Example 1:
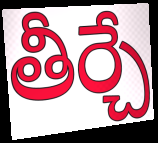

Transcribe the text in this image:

తీర్చే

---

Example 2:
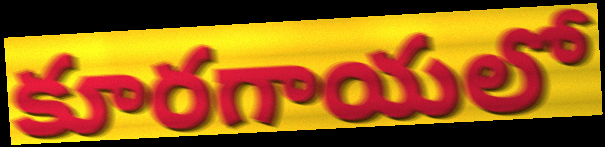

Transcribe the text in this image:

కూరగాయలో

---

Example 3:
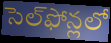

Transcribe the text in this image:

సెల్‌ఫోన్లలో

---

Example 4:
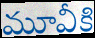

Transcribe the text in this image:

మూవీకి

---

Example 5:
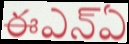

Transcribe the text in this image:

ఈఎన్ఏ